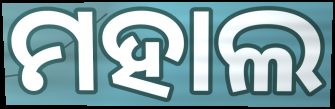
ମହାଲ